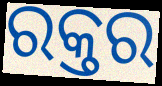
ରକ୍ତର